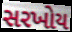
સરખોય